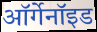
ऑर्गेनॉइड